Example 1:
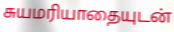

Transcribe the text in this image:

சுயமரியாதையுடன்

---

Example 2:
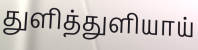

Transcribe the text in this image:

துளித்துளியாய்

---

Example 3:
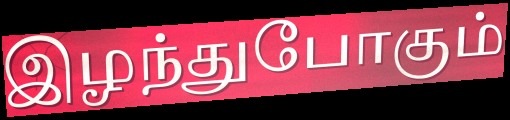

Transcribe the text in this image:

இழந்துபோகும்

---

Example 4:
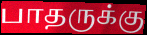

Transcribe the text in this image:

பாதருக்கு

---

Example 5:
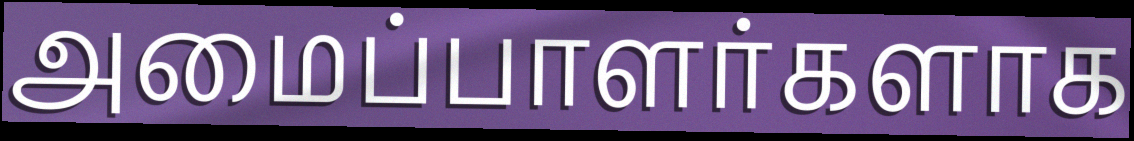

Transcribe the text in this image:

அமைப்பாளர்களாக